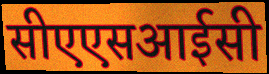
सीएएसआईसी